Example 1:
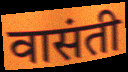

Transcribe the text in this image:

वासंती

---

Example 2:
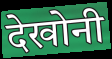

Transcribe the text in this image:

देखोनी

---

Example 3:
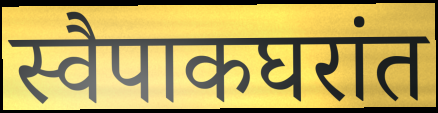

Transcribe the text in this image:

स्वैपाकघरांत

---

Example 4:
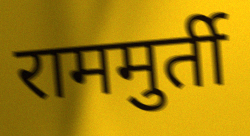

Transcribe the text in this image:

राममुर्ती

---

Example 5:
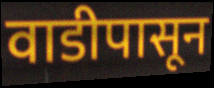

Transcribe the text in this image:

वाडीपासून